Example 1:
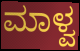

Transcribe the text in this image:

ಮಾಳ್ವ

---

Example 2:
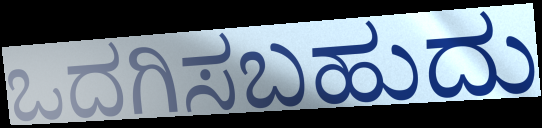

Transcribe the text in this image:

ಒದಗಿಸಬಹುದು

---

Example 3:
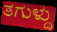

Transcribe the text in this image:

ತಗುಳ್ದು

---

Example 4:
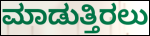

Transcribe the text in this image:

ಮಾಡುತ್ತಿರಲು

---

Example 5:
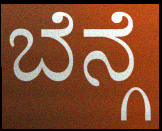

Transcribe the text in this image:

ಬೆನ್ಗೆ